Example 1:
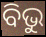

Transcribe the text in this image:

ବିଭୁ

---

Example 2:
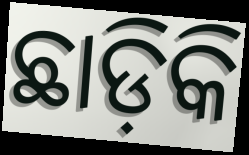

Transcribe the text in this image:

ଛାଡ଼ିକି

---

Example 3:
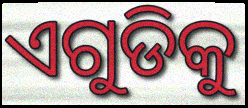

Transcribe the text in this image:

ଏଗୁଡିକୁ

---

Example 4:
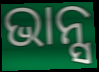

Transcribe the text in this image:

ଭାନ୍ସ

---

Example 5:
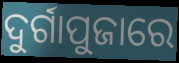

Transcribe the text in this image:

ଦୁର୍ଗାପୁଜାରେ